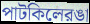
পাটকিলেরঙা